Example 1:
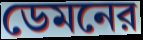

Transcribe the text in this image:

ডেমনের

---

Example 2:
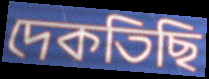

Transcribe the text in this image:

দেকতিছি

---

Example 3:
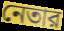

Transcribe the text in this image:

নেতার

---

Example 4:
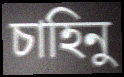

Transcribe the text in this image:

চাহিনু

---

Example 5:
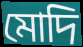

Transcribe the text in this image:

মোদি